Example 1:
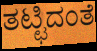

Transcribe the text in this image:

ತಟ್ಟಿದಂತೆ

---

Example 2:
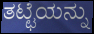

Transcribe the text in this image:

ತಟ್ಟೆಯನ್ನು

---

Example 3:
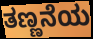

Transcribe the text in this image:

ತಣ್ಣನೆಯ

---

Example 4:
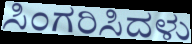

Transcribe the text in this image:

ಸಿಂಗರಿಸಿದಳು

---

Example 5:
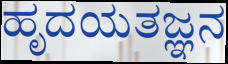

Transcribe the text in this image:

ಹೃದಯತಜ್ಞನ